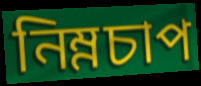
নিম্নচাপ